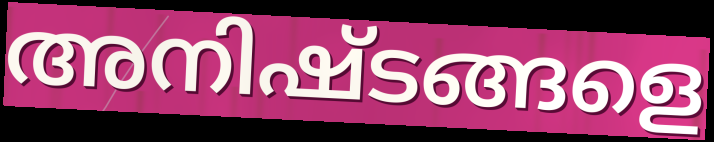
അനിഷ്ടങ്ങളെ